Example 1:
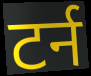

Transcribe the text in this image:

टर्न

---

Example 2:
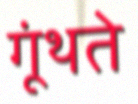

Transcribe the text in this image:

गूंथते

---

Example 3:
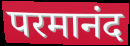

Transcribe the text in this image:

परमानंद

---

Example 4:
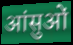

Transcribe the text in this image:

आंसुओं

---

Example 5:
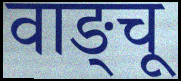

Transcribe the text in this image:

वाङ्चू